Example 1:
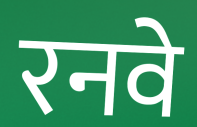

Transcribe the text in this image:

रनवे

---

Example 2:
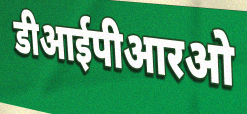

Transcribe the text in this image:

डीआईपीआरओ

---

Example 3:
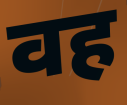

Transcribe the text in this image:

वह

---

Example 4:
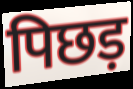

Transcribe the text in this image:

पिछड़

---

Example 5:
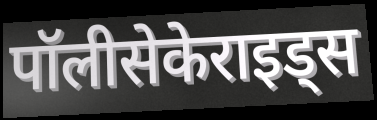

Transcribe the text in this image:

पॉलीसेकेराइड्स